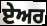
ਏਅਰ